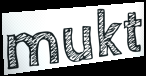
mukt